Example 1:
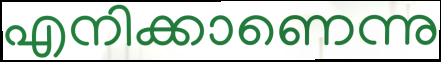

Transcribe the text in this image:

എനിക്കാണെന്നു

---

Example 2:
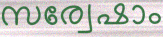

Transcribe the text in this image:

സര്വേഷാം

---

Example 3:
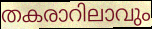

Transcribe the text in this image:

തകരാറിലാവും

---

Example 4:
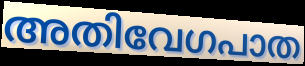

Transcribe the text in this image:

അതിവേഗപാത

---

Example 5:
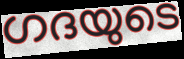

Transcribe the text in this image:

ഗദയുടെ